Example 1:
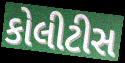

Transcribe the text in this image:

કોલીટીસ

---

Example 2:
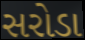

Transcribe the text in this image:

સરોડા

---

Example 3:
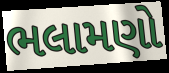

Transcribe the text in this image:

ભલામણો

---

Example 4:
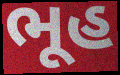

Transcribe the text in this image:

ભૂહ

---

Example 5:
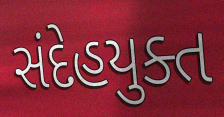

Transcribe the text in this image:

સંદેહયુક્ત